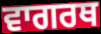
ਵਾਗਰਥ